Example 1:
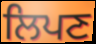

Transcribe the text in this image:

ਲਿਪਣ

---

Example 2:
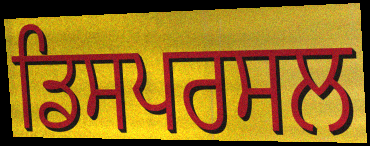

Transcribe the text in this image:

ਡਿਸਪਰਸਲ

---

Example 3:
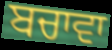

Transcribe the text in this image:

ਬਚਾਵਾ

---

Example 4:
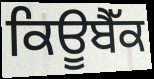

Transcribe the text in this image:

ਕਿਊਬੈੱਕ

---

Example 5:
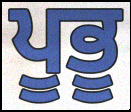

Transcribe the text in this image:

ਪੂਭੂ